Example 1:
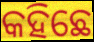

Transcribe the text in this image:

କହିଛେ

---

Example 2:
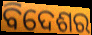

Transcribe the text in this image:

ବିଦେଶର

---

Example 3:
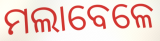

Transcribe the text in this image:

ମଲାବେଳେ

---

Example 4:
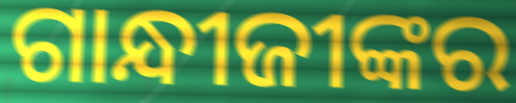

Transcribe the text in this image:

ଗାନ୍ଧୀଜୀଙ୍କର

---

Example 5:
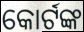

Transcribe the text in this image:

କୋର୍ଟଙ୍କ